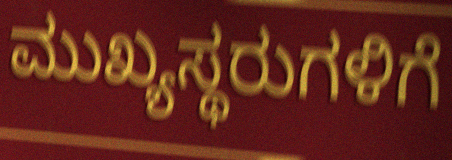
ಮುಖ್ಯಸ್ಥರುಗಳಿಗೆ